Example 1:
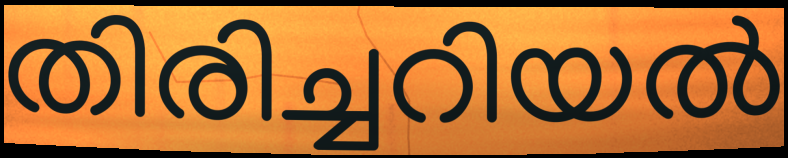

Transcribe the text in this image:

തിരിച്ചറിയൽ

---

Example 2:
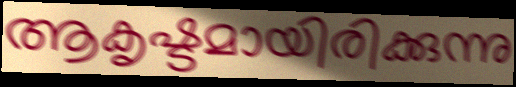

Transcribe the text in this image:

ആകൃഷ്ടമായിരിക്കുന്നു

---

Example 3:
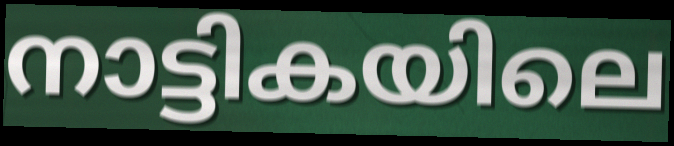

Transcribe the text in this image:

നാട്ടികയിലെ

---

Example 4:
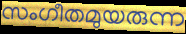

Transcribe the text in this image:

സംഗീതമുയരുന്ന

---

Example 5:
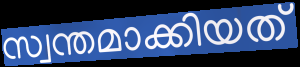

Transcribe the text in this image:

സ്വന്തമാക്കിയത്